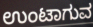
ಉಂಟಾಗುವ